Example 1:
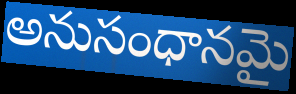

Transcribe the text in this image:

అనుసంధానమై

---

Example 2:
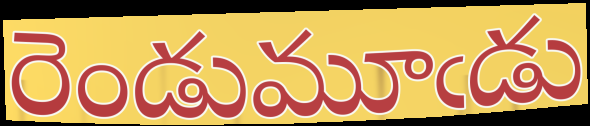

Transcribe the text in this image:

రెండుమూఁడు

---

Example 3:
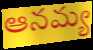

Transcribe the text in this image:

ఆనమ్య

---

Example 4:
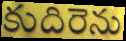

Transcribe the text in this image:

కుదిరెను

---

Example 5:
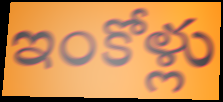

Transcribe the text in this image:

ఇంకోళ్లు